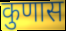
कुणास